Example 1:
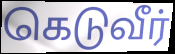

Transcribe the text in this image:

கெடுவீர்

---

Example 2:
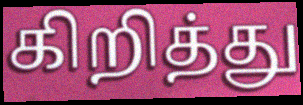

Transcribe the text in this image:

கிறித்து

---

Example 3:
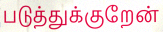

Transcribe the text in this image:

படுத்துக்குறேன்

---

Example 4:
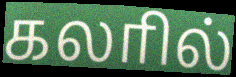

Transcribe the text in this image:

கலரில்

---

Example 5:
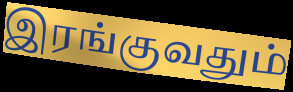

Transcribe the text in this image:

இரங்குவதும்